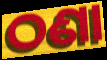
ଠଣା